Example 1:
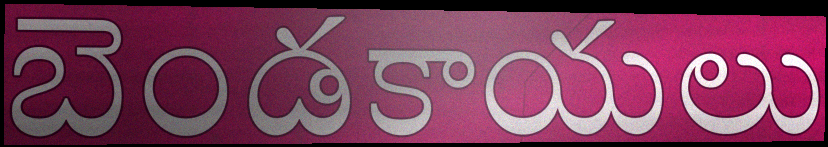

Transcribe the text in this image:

బెండకాయలు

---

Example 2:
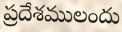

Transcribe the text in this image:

ప్రదేశములందు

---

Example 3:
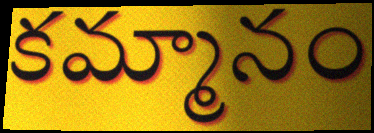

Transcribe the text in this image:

కమ్మానం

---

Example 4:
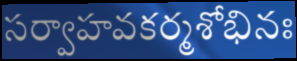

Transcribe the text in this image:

సర్వాహవకర్మశోభినః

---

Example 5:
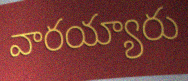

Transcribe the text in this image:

వారయ్యారు